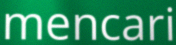
mencari